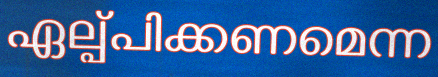
ഏല്പ്പിക്കണമെന്ന